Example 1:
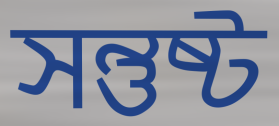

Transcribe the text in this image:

সন্তুষ্ট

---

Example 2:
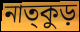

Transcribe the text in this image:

নাত্কুড়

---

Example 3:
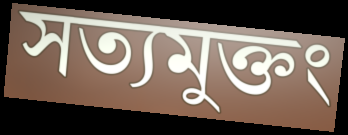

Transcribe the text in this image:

সত্যমুক্তং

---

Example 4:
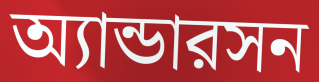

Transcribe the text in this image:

অ্যান্ডারসন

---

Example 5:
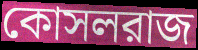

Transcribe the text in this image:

কোসলরাজ